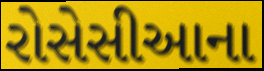
રોસેસીઆના